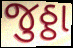
જુઠ્ઠા